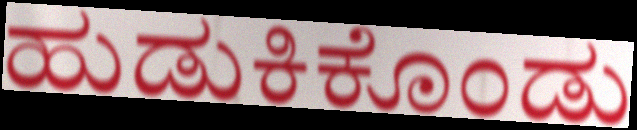
ಹುಡುಕಿಕೊಂಡು